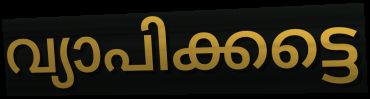
വ്യാപിക്കട്ടെ